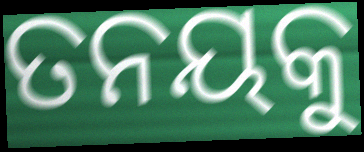
ତନୟକୁ